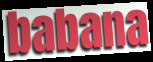
babana